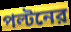
পল্টনের